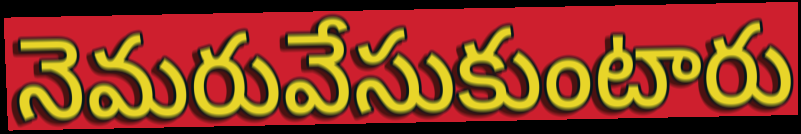
నెమరువేసుకుంటారు